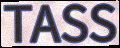
TASS